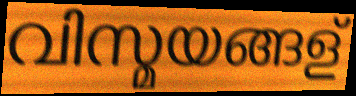
വിസ്മയങ്ങള്